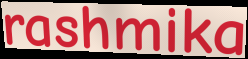
rashmika